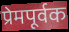
प्रेमपूर्वक